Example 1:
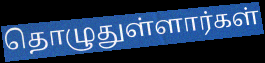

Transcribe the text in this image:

தொழுதுள்ளார்கள்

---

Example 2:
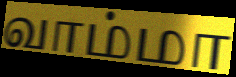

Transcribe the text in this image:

வாம்மா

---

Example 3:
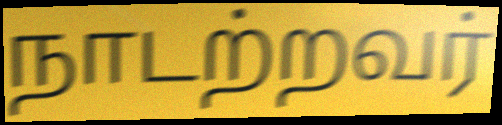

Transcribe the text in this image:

நாடற்றவர்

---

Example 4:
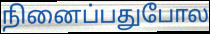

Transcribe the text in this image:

நினைப்பதுபோல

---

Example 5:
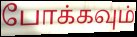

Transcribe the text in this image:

போக்கவும்